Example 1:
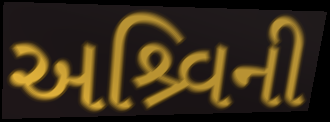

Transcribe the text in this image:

અશ્ર્વિની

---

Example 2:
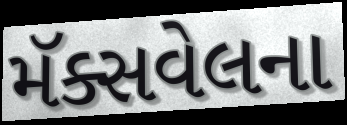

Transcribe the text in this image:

મૅક્સવેલના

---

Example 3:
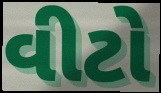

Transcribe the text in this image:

વીટો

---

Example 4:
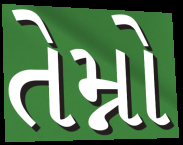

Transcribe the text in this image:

તેમ્નો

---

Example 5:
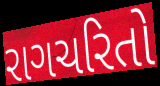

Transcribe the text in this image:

રાગચરિતો